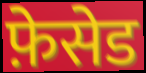
फ़ेसेड